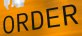
ORDER